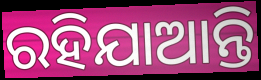
ରହିଯାଆନ୍ତି